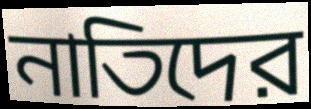
নাতিদের